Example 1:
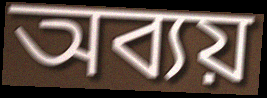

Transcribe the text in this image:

অব্যয়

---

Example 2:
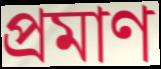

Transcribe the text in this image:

প্ৰমাণ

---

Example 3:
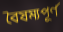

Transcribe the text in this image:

বৈষম্যপূৰ্ণ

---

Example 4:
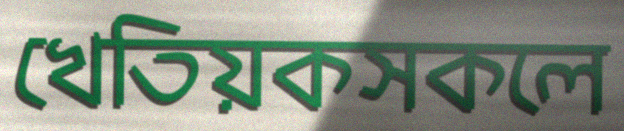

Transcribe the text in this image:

খেতিয়কসকলে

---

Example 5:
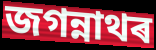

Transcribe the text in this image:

জগন্নাথৰ